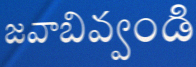
జవాబివ్వండి